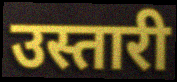
उस्तारी